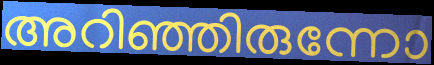
അറിഞ്ഞിരുന്നോ